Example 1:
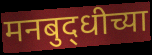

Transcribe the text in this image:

मनबुद्धीच्या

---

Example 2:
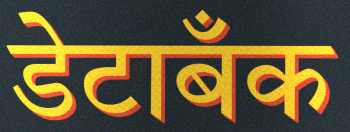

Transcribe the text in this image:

डेटाबँक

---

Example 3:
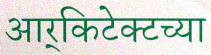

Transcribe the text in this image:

आर्किटेक्टच्या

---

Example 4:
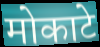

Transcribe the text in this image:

मोकाटे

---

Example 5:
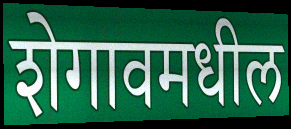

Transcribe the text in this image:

शेगावमधील